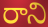
రాని